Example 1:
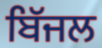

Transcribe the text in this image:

ਬਿੱਜਲ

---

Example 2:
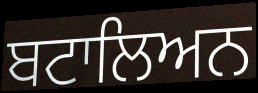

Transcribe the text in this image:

ਬਟਾਲਿਅਨ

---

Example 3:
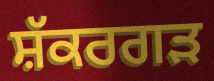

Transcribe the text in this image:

ਸ਼ੱਕਰਗੜ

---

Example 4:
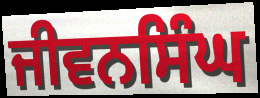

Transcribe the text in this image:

ਜੀਵਨਸਿੰਘ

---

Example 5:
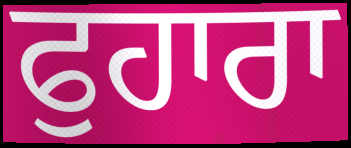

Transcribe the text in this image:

ਫੁਹਾਰਾ